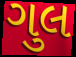
ગુલ